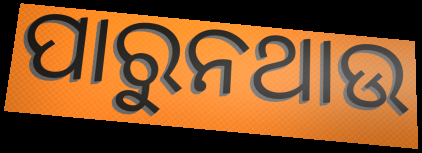
ପାରୁନଥାଉ